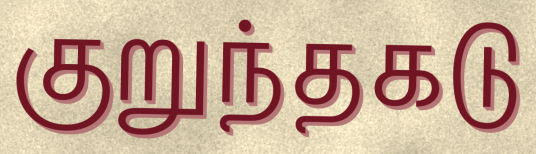
குறுந்தகடு